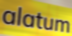
alatum